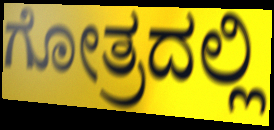
ಗೋತ್ರದಲ್ಲಿ